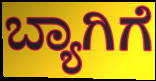
ಬ್ಯಾಗಿಗೆ